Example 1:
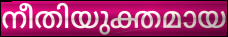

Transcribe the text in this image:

നീതിയുക്തമായ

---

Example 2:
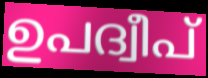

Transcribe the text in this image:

ഉപദ്വീപ്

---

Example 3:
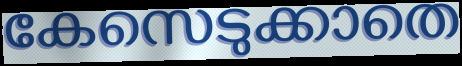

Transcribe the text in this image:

കേസെടുക്കാതെ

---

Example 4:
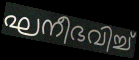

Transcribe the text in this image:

ഘനീഭവിച്ച്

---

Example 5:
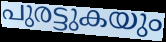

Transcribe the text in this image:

പുരട്ടുകയും